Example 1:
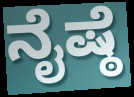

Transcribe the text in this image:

ನೈಷ್ಠೆ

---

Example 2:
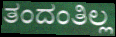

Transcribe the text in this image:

ತಂದಂತಿಲ್ಲ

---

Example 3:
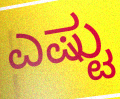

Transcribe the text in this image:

ಎಷ್ಟು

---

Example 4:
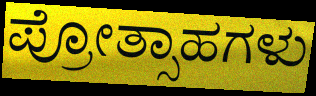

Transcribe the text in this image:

ಪ್ರೋತ್ಸಾಹಗಳು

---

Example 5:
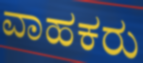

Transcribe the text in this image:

ವಾಹಕರು